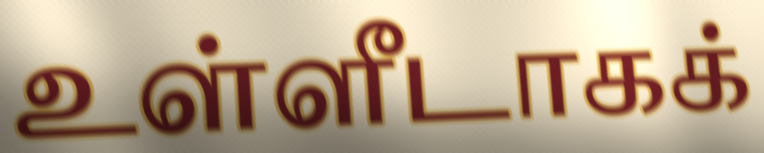
உள்ளீடாகக்